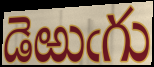
డెఱుఁగు